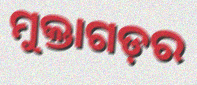
ମୁକ୍ତାଗଡ଼ର